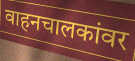
वाहनचालकांवर